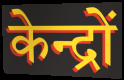
केन्द्रों